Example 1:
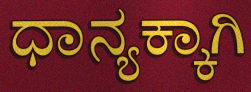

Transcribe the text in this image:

ಧಾನ್ಯಕ್ಕಾಗಿ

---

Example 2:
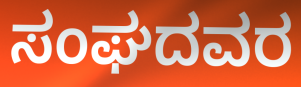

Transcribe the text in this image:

ಸಂಘದವರ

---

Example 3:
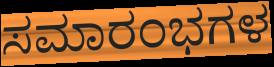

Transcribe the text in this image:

ಸಮಾರಂಭಗಳ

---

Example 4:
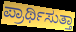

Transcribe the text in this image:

ಪ್ರಾರ್ಥಿಸುತ್ತಾ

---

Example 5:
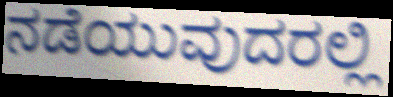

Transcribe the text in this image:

ನಡೆಯುವುದರಲ್ಲಿ